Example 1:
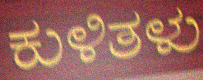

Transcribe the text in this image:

ಕುಳಿತಳು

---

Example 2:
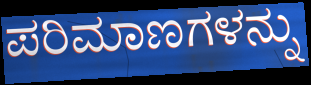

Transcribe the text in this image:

ಪರಿಮಾಣಗಳನ್ನು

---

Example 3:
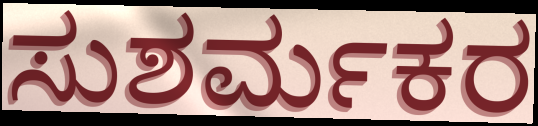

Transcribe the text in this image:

ಸುಶರ್ಮಕರ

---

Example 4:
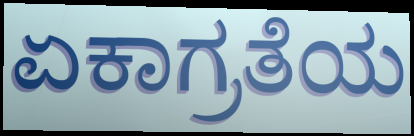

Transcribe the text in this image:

ಏಕಾಗ್ರತೆಯ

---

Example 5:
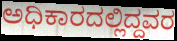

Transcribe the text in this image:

ಅಧಿಕಾರದಲ್ಲಿದ್ದವರ